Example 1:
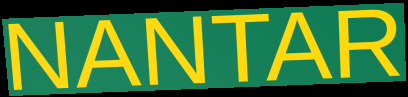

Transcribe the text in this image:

NANTAR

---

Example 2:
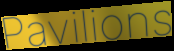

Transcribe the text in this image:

Pavilions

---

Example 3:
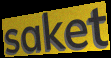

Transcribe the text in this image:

saket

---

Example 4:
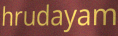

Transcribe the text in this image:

hrudayam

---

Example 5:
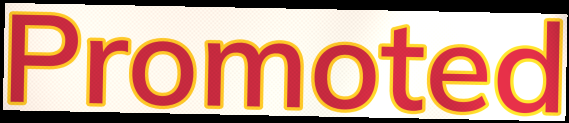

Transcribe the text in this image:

Promoted